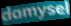
damysel